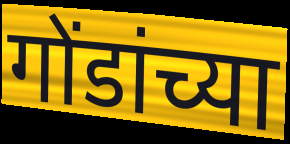
गोंडांच्या